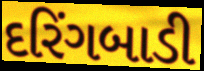
દરિંગબાડી